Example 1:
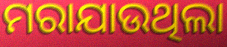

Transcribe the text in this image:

ମରାଯାଉଥିଲା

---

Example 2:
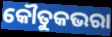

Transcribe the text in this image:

କୌତୁକଭରା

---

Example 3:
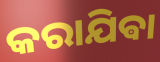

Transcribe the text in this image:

କରାଯିଵା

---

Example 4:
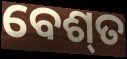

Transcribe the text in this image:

ବେଶ୍‍ତ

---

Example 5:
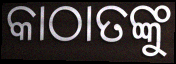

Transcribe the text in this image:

କାଠାତଙ୍କୁ